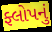
ફ્લોપનું